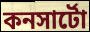
কনসার্টো